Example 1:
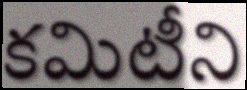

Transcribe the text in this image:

కమిటీని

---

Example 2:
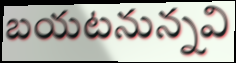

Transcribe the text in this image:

బయటనున్నవి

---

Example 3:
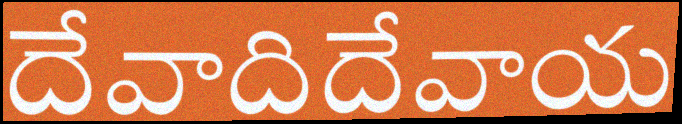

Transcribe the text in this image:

దేవాదిదేవాయ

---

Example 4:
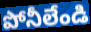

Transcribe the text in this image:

పోనీలేండి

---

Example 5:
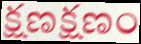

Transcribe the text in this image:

క్షణక్షణం